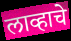
लाव्हाचे